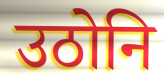
उठोनि